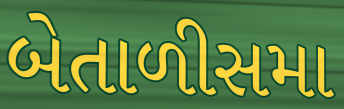
બેતાળીસમા